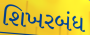
શિખરબંધ